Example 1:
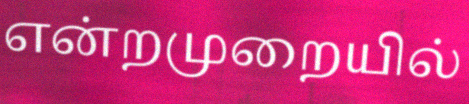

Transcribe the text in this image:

என்றமுறையில்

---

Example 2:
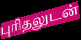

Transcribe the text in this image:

புரிதலுடன்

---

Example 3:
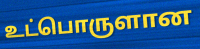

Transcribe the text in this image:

உட்பொருளான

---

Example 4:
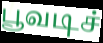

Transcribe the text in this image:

பூவடிச்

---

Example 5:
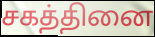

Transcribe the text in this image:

சகத்தினை